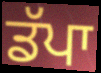
ਡੱਪਾ